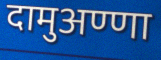
दामुअण्णा